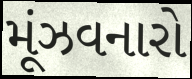
મૂંઝવનારો